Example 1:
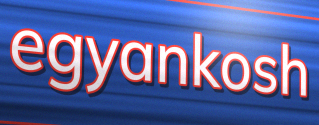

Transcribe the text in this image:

egyankosh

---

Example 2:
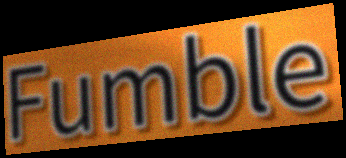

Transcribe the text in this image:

Fumble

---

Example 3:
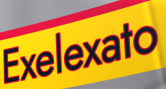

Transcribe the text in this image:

Exelexato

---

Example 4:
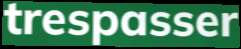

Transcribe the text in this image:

trespasser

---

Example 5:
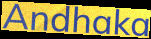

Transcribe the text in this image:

Andhaka